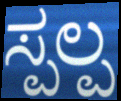
ಸ್ಪಲ್ಪ